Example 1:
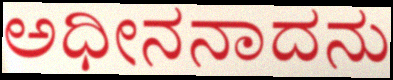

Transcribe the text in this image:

ಅಧೀನನಾದನು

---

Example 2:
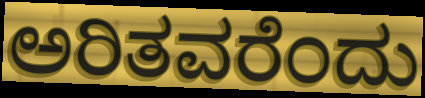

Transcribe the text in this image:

ಅರಿತವರೆಂದು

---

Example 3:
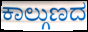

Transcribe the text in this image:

ಕಾಲ್ಗುಣದ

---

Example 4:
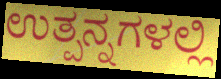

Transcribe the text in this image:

ಉತ್ಪನ್ನಗಳಲ್ಲಿ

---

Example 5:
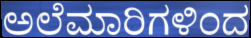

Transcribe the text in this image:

ಅಲೆಮಾರಿಗಳಿಂದ